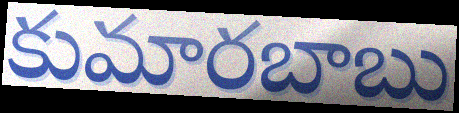
కుమారబాబు